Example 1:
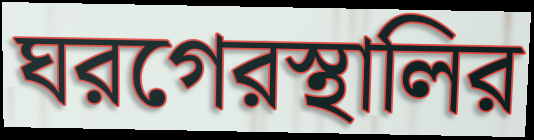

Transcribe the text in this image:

ঘরগেরস্থালির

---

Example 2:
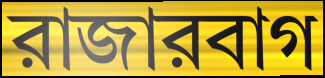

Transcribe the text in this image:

রাজারবাগ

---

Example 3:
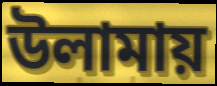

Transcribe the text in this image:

উলামায়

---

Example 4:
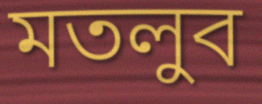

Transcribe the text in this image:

মতলুব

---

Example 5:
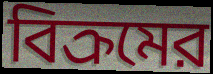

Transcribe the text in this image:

বিক্রমের